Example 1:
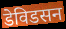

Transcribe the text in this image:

डेविडसन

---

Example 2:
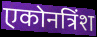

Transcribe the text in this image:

एकोनत्रिंश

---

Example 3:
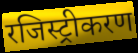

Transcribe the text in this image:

रजिस्ट्रीकरण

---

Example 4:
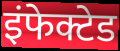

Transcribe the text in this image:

इंफेक्टेड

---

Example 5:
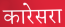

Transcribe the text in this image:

कारेसरा